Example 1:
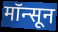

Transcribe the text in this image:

मॉन्सून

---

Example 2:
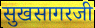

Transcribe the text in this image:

सुखसागरजी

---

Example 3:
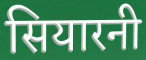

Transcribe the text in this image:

सियारनी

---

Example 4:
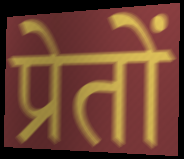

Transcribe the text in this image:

प्रेतों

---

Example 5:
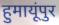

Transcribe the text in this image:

हुमायूंपुर